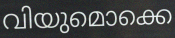
വിയുമൊക്കെ